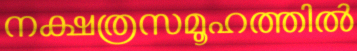
നക്ഷത്രസമൂഹത്തിൽ